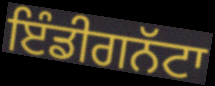
ਇੰਡੀਗਨੱਟਾ